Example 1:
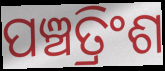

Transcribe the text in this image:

ପଞ୍ଚତ୍ରିଂଶ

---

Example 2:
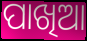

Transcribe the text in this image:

ପାଖିଆ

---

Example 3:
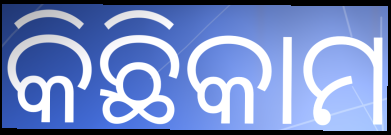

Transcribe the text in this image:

କିଛିକାମ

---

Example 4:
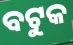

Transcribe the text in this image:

ବଟୁକ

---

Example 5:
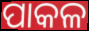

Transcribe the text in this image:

ପାକଳ